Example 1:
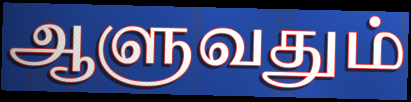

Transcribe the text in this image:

ஆளுவதும்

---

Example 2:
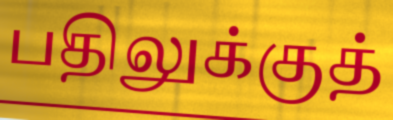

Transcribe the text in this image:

பதிலுக்குத்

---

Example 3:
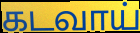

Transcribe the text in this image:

கடவாய்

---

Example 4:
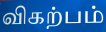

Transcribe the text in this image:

விகற்பம்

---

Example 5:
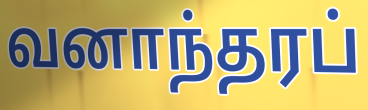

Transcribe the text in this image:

வனாந்தரப்